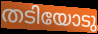
തടിയോടു